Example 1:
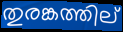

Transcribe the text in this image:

തുരങ്കത്തില്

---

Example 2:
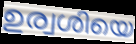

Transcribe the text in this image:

ഉര്വശിയെ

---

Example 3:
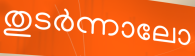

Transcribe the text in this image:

തുടർന്നാലോ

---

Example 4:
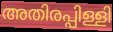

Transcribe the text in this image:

അതിരപ്പിള്ളി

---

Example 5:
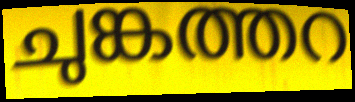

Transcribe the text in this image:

ചുങ്കത്തറ